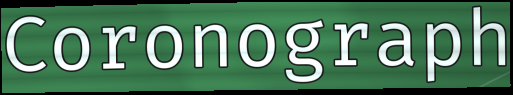
Coronograph